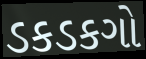
ડકડકગો